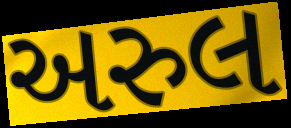
અરુલ